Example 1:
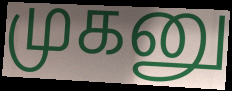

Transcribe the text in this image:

முகனு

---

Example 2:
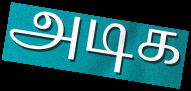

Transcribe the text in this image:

அடிக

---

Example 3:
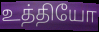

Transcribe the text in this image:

உத்தியோ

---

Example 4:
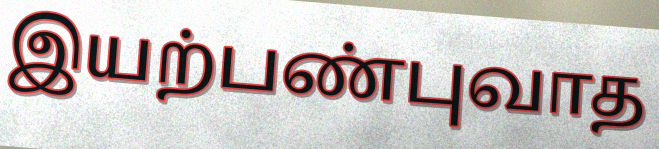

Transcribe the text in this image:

இயற்பண்புவாத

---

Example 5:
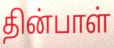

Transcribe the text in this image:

தின்பாள்